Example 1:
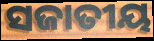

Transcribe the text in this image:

ସଜାତୀୟ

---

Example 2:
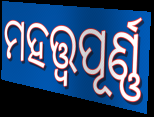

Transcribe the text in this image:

ମହତ୍ତ୍ଵପୂର୍ଣ୍ଣ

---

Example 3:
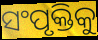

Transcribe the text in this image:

ସଂପୃକ୍ତିକୁ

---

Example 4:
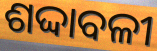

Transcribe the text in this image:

ଶଦ୍ଦାବଳୀ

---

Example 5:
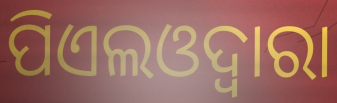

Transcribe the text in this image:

ପିଏଲଓଦ୍ୱାରା